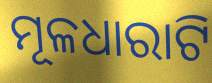
ମୂଳଧାରାଟି